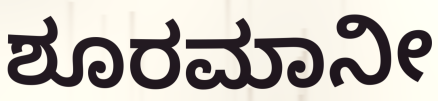
ಶೂರಮಾನೀ